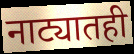
नाट्यातही